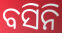
ବସିନି